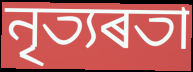
নৃত্যৰতা